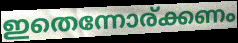
ഇതെന്നോര്ക്കണം